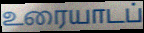
உரையாடப்